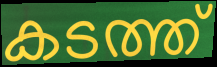
കടത്ത്